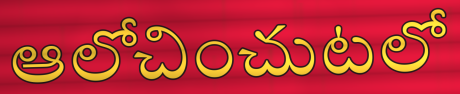
ఆలోచించుటలో